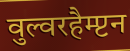
वुल्वरहैम्प्टन